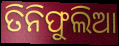
ତିନିଫୁଲିଆ